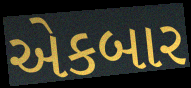
એકબાર